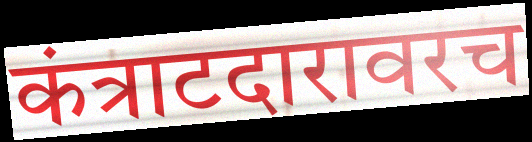
कंत्राटदारावरच